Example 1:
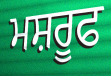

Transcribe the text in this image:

ਮਸ਼ਰੂਫ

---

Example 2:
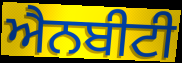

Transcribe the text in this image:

ਐਨਬੀਟੀ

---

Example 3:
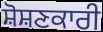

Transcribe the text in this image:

ਸ਼ੋਸ਼ਣਕਾਰੀ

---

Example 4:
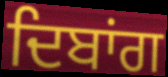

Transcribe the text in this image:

ਦਿਬਾਂਗ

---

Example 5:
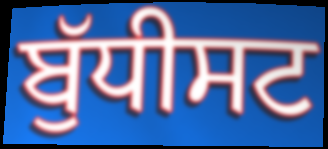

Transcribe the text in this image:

ਬੁੱਧੀਸਟ